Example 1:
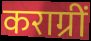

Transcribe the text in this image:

कराग्रीं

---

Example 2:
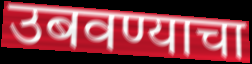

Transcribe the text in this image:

उबवण्याचा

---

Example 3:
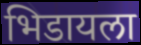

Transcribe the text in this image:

भिडायला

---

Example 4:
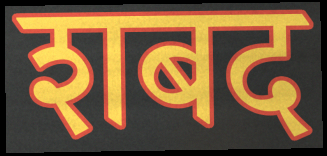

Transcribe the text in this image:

शबद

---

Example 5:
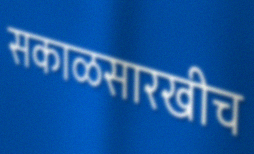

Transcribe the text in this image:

सकाळसारखीच